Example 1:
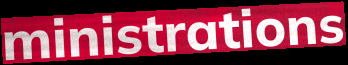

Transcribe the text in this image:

ministrations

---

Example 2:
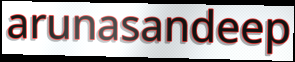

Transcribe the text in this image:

arunasandeep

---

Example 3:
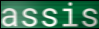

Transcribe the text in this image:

assis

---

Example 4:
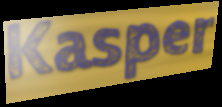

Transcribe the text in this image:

Kasper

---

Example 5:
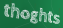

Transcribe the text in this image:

thoghts